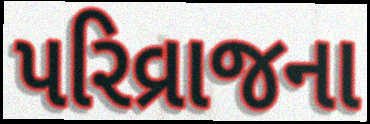
પરિવ્રાજના